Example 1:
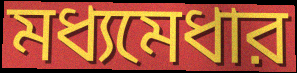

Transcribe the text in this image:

মধ্যমেধার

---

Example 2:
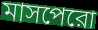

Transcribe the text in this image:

মাসপেরো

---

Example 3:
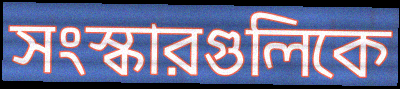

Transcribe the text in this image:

সংস্কারগুলিকে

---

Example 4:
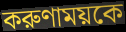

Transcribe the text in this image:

করুণাময়কে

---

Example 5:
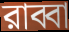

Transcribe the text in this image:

রাব্বা